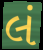
લં